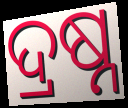
ଦ୍ରଷ୍ନ